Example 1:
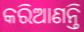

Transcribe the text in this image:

କରିଆଣନ୍ତି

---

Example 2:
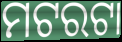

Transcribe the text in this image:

ମଟରଟା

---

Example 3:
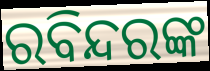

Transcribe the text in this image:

ରବିନ୍ଦରଙ୍କ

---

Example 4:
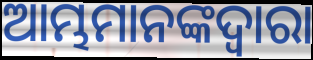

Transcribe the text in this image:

ଆମ୍ଭମାନଙ୍କଦ୍ୱାରା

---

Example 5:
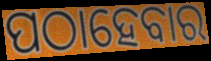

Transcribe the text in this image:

ପଠାହେବାର